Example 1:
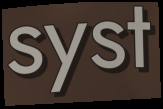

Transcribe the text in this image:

syst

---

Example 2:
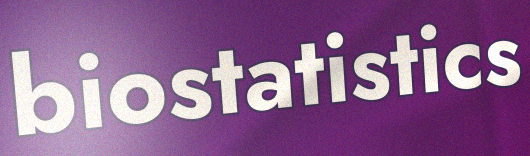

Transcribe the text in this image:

biostatistics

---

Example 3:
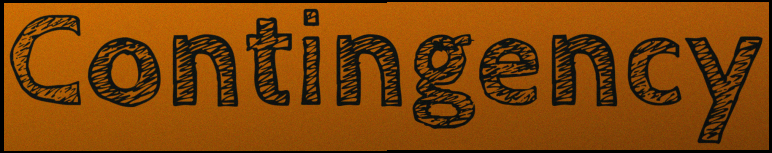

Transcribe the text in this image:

Contingency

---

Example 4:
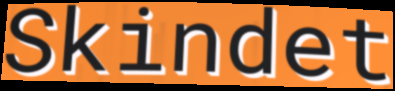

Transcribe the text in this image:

Skindet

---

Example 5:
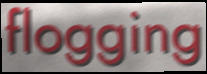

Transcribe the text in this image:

flogging